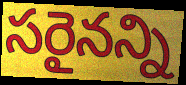
సరైనన్ని